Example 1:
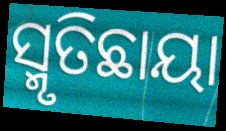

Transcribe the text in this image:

ସ୍ମୃତିଛାୟା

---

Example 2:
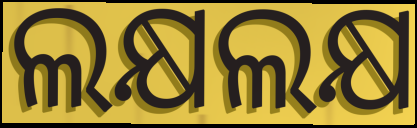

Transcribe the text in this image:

ଲକ୍ଷଲକ୍ଷ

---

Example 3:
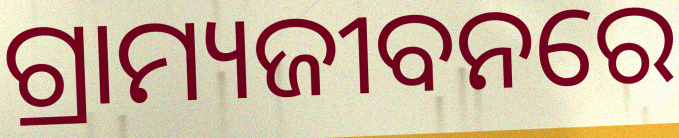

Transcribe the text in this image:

ଗ୍ରାମ୍ୟଜୀବନରେ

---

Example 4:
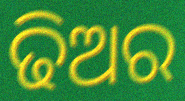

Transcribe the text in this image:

ଢିଅର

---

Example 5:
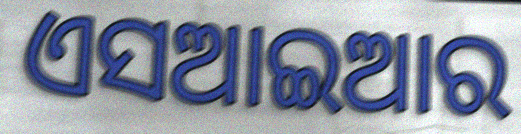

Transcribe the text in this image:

ଏସଆଇଆର